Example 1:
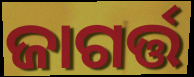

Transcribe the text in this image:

ଜାଗର୍ତ୍ତ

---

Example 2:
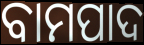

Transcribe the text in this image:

ବାମପାଦ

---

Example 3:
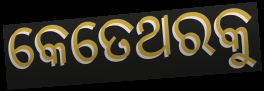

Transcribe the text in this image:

କେତେଥରକୁ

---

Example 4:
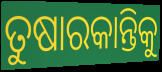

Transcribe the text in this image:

ତୁଷାରକାନ୍ତିକୁ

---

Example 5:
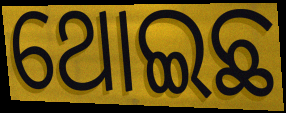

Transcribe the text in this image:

ଥୋଇଛ